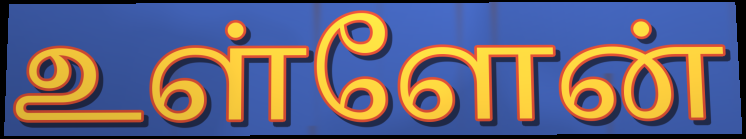
உள்ளேன்